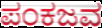
ಪಂಕಜವ